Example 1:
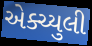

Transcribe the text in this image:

એક્ચ્યુલી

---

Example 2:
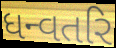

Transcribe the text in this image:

ધન્વતરિ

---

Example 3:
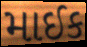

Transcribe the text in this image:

માઈક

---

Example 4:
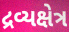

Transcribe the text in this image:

દ્રવ્યક્ષેત્ર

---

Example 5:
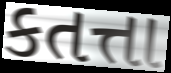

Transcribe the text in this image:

કતત્તા